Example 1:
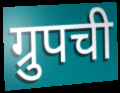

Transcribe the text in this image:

ग्रुपची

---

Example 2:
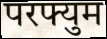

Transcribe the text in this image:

परफ्युम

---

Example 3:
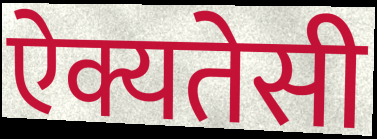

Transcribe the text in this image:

ऐक्यतेसी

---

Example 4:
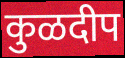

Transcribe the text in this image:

कुळदीप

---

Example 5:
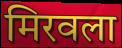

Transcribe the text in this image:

मिरवला